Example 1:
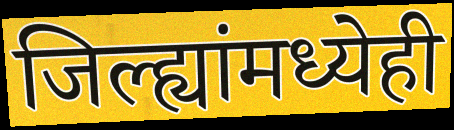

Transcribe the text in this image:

जिल्ह्यांमध्येही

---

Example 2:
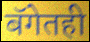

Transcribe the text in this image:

बॅगेतही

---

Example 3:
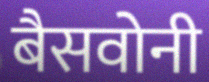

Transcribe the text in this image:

बैसवोनी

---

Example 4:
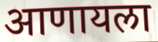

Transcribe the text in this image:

आणायला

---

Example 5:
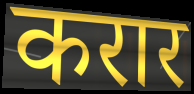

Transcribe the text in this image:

करार